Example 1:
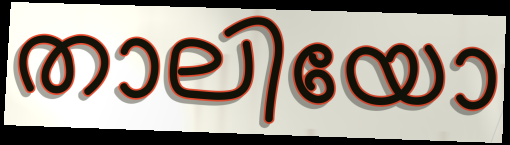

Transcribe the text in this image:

താലിയോ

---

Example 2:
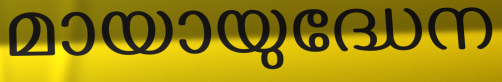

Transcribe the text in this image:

മായായുദ്ധേന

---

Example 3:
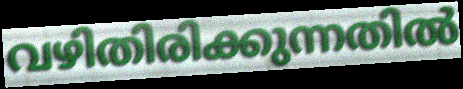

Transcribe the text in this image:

വഴിതിരിക്കുന്നതിൽ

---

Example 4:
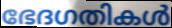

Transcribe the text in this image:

ഭേദഗതികൾ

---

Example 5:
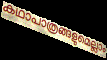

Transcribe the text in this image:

കഥാപാത്രങ്ങളുമെല്ലാം